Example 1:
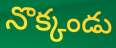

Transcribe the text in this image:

నొక్కండు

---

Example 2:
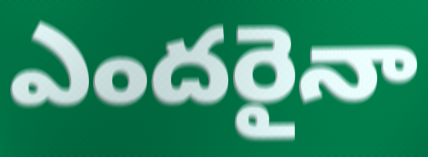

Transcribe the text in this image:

ఎందరైనా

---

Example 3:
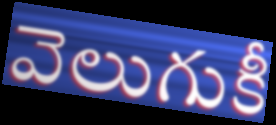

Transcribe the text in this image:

వెలుగుకీ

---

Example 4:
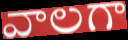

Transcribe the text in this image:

వాలగా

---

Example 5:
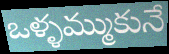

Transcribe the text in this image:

ఒళ్ళమ్ముకునే